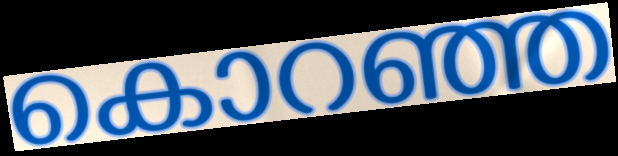
കൊറഞ്ഞ